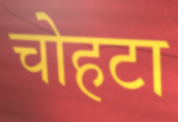
चोहटा